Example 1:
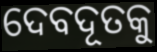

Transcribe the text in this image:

ଦେବଦୂତକୁ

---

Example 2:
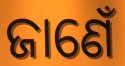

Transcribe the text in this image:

ଜାଣେଁ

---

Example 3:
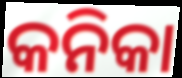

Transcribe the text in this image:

କନିକା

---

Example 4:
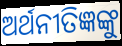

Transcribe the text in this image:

ଅର୍ଥନୀତିଜ୍ଞଙ୍କୁ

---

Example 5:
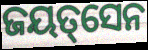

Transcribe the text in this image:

ଜୟତ୍‌ସେନ